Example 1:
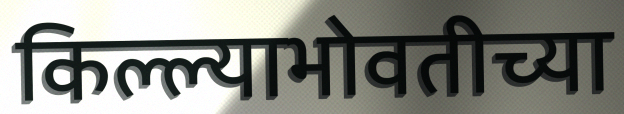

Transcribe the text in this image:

किल्ल्याभोवतीच्या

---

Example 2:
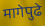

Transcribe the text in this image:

मागेपुढे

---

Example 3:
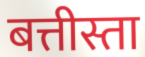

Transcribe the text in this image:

बत्तीस्ता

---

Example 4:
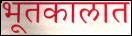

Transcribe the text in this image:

भूतकालात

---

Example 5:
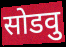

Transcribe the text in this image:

सोडवु